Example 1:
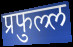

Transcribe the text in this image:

प्रफुल्ल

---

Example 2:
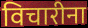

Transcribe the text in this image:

विचारीना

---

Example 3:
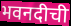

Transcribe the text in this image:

भवनदीची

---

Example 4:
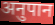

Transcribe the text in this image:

अनुपान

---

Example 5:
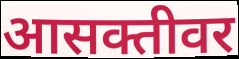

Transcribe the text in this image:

आसक्तीवर